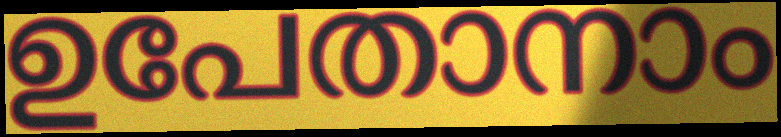
ഉപേതാനാം